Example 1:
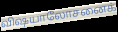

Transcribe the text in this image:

விஷயாலோசனைக்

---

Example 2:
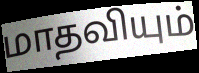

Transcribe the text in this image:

மாதவியும்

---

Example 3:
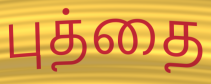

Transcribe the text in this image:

புத்தை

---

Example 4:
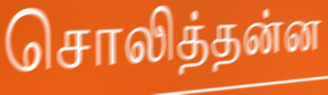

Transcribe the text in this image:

சொலித்தன்ன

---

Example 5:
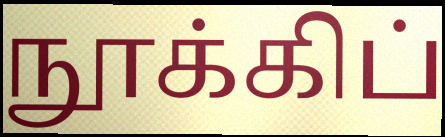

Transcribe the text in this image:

நூக்கிப்